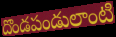
దొండపండులాంటి